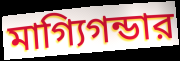
মাগ্যিগন্ডার